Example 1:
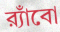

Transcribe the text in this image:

র‍্যাঁবো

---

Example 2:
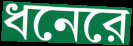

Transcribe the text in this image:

ধনেরে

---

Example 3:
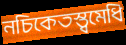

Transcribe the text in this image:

নচিকেতস্ত্বমেধি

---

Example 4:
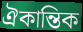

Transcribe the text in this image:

ঐকান্তিক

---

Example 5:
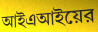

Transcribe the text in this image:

আইএআইয়ের